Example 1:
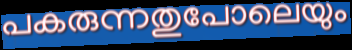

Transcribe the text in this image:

പകരുന്നതുപോലെയും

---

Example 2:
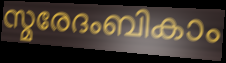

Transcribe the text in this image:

സ്മരേദംബികാം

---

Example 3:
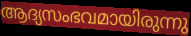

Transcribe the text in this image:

ആദ്യസംഭവമായിരുന്നു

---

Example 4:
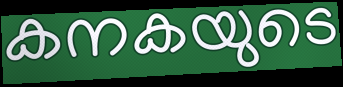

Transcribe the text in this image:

കനകയുടെ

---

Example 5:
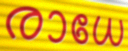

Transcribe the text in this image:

രാധേ